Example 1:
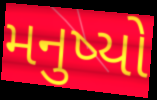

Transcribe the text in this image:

મનુષ્યો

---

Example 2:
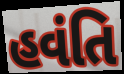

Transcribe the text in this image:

હવંતિ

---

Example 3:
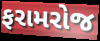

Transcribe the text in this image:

ફરામરોજ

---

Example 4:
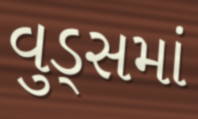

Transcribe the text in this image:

વુડ્સમાં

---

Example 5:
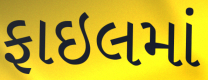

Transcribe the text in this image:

ફાઇલમાં